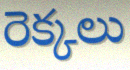
రెక్కలు